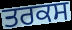
ਤਰਕਸ